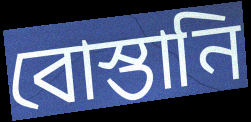
বোস্তানি